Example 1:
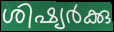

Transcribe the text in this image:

ശിഷ്യർക്കു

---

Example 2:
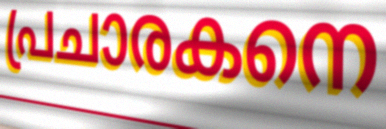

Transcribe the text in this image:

പ്രചാരകനെ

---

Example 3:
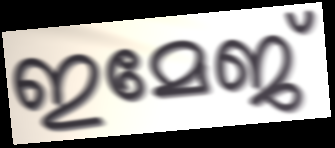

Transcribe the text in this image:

ഇമേജ്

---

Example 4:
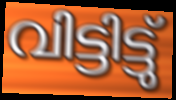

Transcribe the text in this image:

വിട്ടിട്ടു്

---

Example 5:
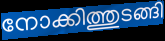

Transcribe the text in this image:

നോക്കിത്തുടങ്ങി